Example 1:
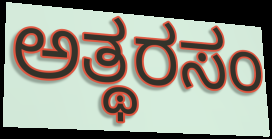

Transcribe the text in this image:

ಅತ್ಥರಸಂ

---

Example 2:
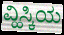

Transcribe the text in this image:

ವ್ಹಿಸ್ಕಿಯ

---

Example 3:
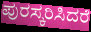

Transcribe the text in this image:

ಪುರಸ್ಕರಿಸಿದರೆ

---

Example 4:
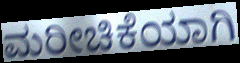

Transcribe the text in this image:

ಮರೀಚಿಕೆಯಾಗಿ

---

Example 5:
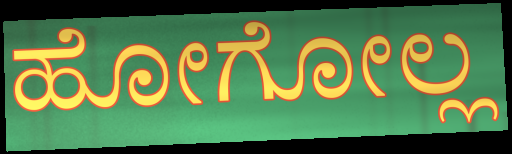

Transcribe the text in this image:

ಹೋಗೋಲ್ಲ